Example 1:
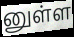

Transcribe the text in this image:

னுள்ள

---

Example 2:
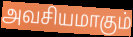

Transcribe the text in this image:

அவசியமாகும்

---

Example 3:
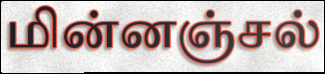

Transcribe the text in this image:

மின்னஞ்சல்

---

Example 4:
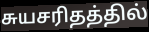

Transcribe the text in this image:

சுயசரிதத்தில்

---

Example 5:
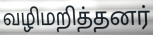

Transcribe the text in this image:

வழிமறித்தனர்